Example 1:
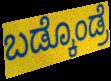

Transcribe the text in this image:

ಬಡ್ಕೊಂಡ್ರೆ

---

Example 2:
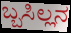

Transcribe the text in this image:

ಬ್ಬಸಿಲ್ಲನ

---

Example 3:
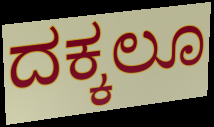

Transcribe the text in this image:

ದಕ್ಕಲೂ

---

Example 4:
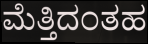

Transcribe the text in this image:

ಮೆತ್ತಿದಂತಹ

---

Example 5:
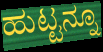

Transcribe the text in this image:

ಹುಟ್ಟನ್ನೂ